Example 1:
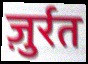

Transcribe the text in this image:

ज़ुर्रत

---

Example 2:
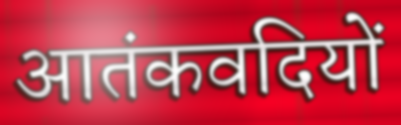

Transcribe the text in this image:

आतंकवदियों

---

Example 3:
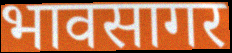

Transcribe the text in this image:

भावसागर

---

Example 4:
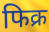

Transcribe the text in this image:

फिक्र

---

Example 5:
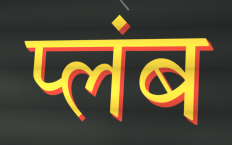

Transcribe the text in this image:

प्लंब